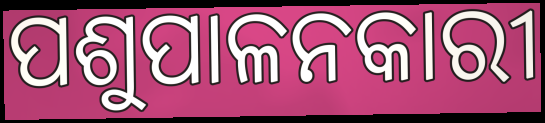
ପଶୁପାଳନକାରୀ